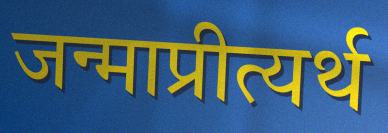
जन्माप्रीत्यर्थ